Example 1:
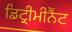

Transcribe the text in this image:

ਡਿਟ੍ਰੀਮੀਨੈਂਟ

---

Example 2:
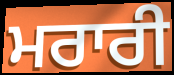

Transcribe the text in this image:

ਮਰਾਰੀ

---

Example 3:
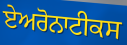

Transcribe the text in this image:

ਏਅਰੋਨਾਟੀਕਸ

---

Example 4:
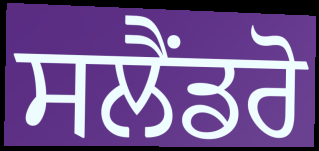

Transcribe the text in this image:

ਸਲੈਂਡਰੋ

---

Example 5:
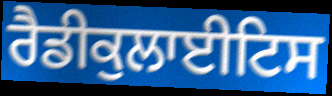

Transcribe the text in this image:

ਰੈਡੀਕੁਲਾਈਟਿਸ